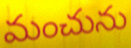
మంచును